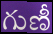
గుణీ